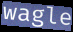
wagle